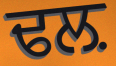
ਢਲ਼